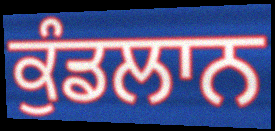
ਕੁੰਡਲਾਨ